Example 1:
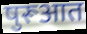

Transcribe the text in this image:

षुरूआत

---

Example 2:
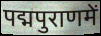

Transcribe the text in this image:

पद्मपुराणमें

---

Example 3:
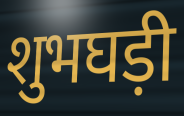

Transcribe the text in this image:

शुभघड़ी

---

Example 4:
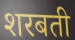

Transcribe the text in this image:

शरबती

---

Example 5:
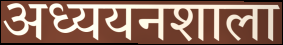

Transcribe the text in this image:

अध्ययनशाला